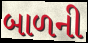
બાળની